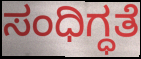
ಸಂಧಿಗ್ಧತೆ